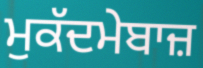
ਮੁਕੱਦਮੇਬਾਜ਼